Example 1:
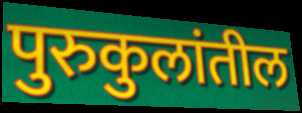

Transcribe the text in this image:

पुरुकुलांतील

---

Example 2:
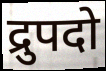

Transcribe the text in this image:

द्रुपदो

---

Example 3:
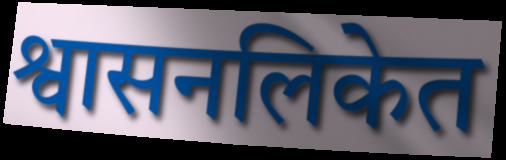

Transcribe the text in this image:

श्वासनलिकेत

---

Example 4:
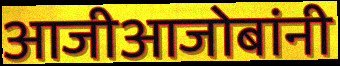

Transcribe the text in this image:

आजीआजोबांनी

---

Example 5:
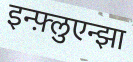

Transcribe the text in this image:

इन्फ़्लुएन्झा